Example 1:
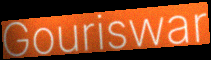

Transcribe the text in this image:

Gouriswar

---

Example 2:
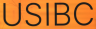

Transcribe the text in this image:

USIBC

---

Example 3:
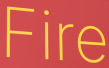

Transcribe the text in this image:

Fire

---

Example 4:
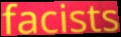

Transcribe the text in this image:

facists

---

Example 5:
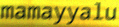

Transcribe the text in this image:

mamayyalu